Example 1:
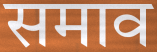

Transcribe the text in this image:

समाव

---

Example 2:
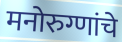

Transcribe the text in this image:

मनोरुग्णांचे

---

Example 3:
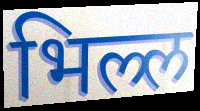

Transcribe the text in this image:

भिल्ल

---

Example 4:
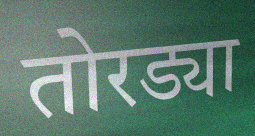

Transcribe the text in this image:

तोरड्या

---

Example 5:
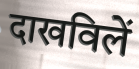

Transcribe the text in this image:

दाखविलें